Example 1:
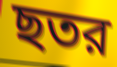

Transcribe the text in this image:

ছতর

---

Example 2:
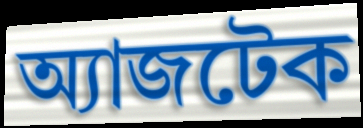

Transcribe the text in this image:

অ্যাজটেক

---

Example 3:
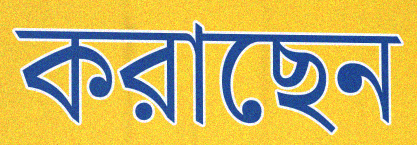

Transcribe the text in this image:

করাছেন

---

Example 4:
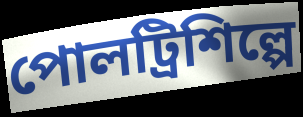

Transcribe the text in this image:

পোলট্রিশিল্পে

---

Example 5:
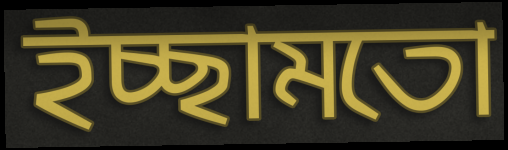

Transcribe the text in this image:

ইচ্ছামতো